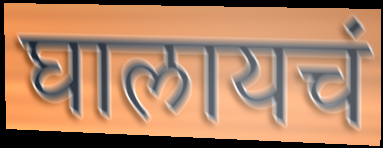
घालायचं